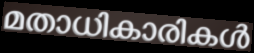
മതാധികാരികൾ